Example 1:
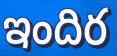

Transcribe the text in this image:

ఇందిర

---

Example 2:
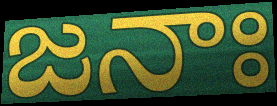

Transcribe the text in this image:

జనాః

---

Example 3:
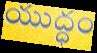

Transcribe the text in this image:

యుద్ధం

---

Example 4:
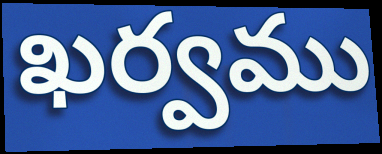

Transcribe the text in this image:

ఖర్వము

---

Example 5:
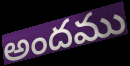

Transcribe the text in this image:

అందము